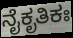
ನೈಕೃತಿಕಃ